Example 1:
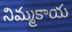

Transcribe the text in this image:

నిమ్మకాయ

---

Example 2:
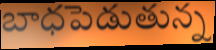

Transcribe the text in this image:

బాధపెడుతున్న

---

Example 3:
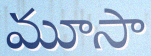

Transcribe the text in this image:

మూసా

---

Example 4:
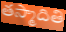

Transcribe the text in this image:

తస్మాదితి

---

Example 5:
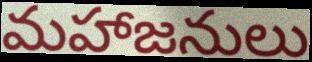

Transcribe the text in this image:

మహాజనులు